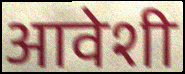
आवेशी